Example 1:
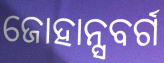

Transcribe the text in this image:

ଜୋହାନ୍ସବର୍ଗ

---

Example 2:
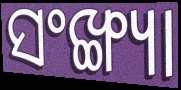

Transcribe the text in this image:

ସଂଙ୍ଖ୍ଯା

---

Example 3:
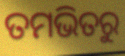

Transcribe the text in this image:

ତମଭିତରୁ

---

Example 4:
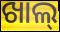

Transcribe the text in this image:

ଖାଲ୍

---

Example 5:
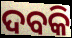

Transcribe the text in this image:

ଦବକି